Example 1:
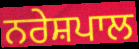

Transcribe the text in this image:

ਨਰੇਸ਼ਪਾਲ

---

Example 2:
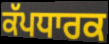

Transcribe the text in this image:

ਕੱਪਧਾਰਕ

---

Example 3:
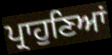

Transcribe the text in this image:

ਪ੍ਰਾਹੁਣਿਆਂ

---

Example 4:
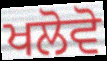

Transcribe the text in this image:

ਖਲੋਵੋ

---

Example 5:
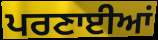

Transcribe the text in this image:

ਪਰਣਾਈਆਂ